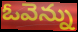
ఓవెన్ను